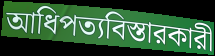
আধিপত্যবিস্তারকারী